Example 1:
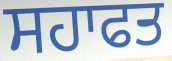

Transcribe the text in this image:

ਸਹਾਫਤ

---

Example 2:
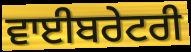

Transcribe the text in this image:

ਵਾਈਬਰੇਟਰੀ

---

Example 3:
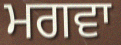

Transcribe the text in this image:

ਮਗਵਾ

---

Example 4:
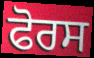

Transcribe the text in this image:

ਫੋਰਸ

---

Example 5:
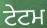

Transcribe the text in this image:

ਟੇਟਮ